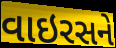
વાઇરસને